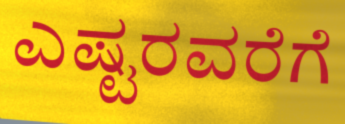
ಎಷ್ಟರವರೆಗೆ